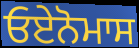
ਓਏਨੋਮਾਸ